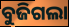
ବୁଜିଗଲା